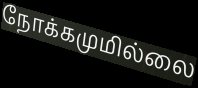
நோக்கமுமில்லை